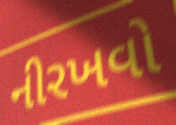
નીરખવો